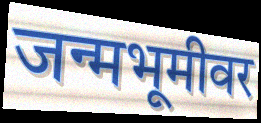
जन्मभूमीवर